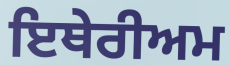
ਇਥੇਰੀਅਮ